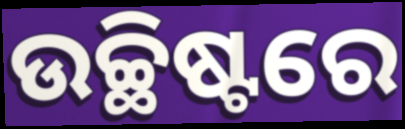
ଉଚ୍ଛିଷ୍ଟରେ